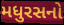
મધુરસનો